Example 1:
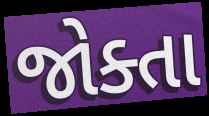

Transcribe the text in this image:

જોક્તા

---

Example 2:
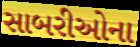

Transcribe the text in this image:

સાબરીઓના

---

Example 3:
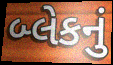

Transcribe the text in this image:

બ્લેકનું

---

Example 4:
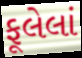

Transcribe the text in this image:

ફૂલેલાં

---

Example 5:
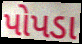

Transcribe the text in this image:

પોપડા